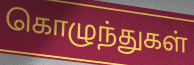
கொழுந்துகள்